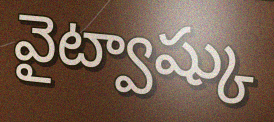
వైట్వాష్కు